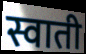
स्वाती